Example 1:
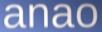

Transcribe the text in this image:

anao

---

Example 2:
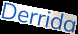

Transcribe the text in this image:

Derrida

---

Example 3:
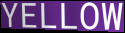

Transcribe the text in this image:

YELLOW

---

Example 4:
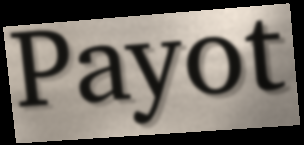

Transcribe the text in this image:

Payot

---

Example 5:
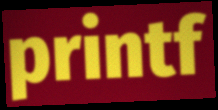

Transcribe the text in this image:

printf